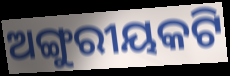
ଅଙ୍ଗୁରୀୟକଟି